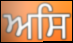
ਅਸਿ